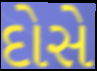
દોસે